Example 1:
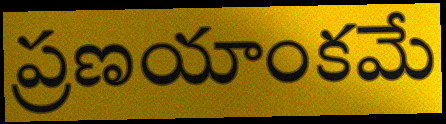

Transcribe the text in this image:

ప్రణయాంకమే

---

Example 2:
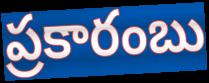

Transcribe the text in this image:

ప్రకారంబు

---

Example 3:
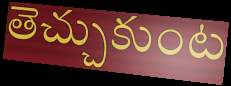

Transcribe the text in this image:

తెచ్చుకుంట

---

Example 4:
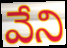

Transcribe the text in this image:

వేని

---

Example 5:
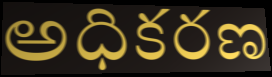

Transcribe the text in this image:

అధికరణ